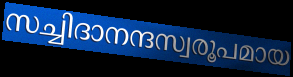
സച്ചിദാനന്ദസ്വരൂപമായ